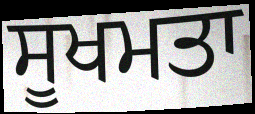
ਸੂਖਮਤਾ